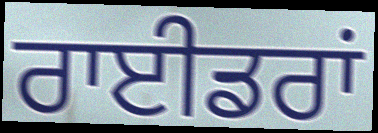
ਰਾਈਡਰਾਂ